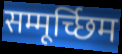
सम्मूर्च्छिम